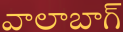
వాలాబాగ్